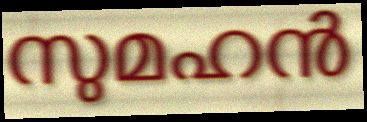
സുമഹൻ